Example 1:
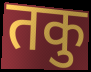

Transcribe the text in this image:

तकु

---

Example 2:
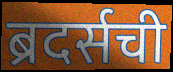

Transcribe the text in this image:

ब्रदर्सची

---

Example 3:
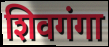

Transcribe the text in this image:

शिवगंगा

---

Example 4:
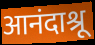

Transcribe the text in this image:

आनंदाश्रू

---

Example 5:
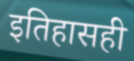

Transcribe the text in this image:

इतिहासही